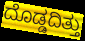
ದೊಡ್ಡದಿತ್ತು